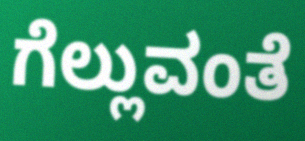
ಗೆಲ್ಲುವಂತೆ